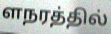
ளநரத்தில்